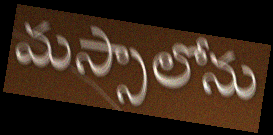
మస్సాలోను